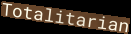
Totalitarian